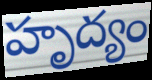
హృద్యం